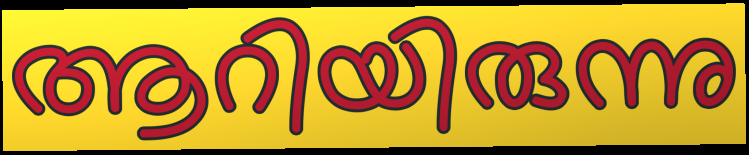
ആറിയിരുന്നു